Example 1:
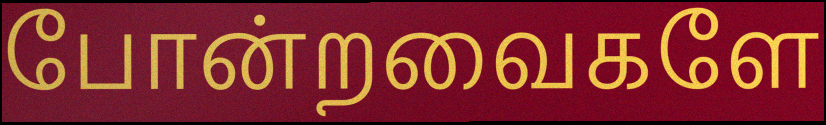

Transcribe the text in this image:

போன்றவைகளே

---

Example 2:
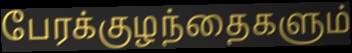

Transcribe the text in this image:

பேரக்குழந்தைகளும்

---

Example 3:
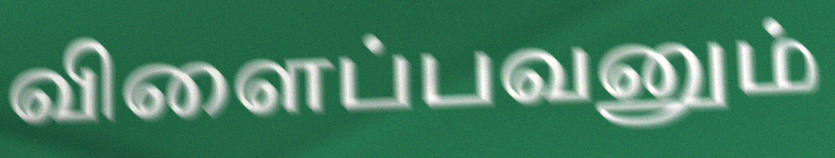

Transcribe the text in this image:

விளைப்பவனும்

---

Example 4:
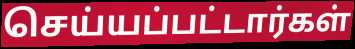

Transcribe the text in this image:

செய்யப்பட்டார்கள்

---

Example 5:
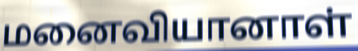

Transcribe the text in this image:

மனைவியானாள்